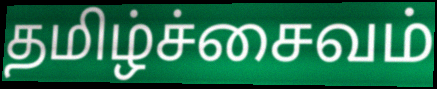
தமிழ்ச்சைவம்